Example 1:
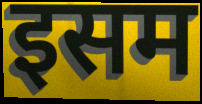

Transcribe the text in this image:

इसम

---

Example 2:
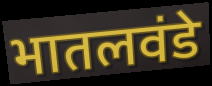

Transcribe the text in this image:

भातलवंडे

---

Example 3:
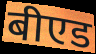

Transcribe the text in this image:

बीएड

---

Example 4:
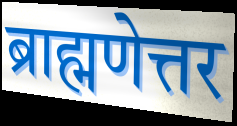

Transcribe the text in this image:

ब्राह्मणेत्तर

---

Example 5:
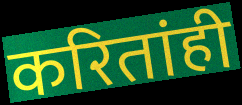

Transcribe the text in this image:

करितांही